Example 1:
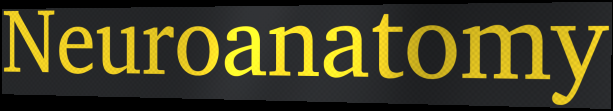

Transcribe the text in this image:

Neuroanatomy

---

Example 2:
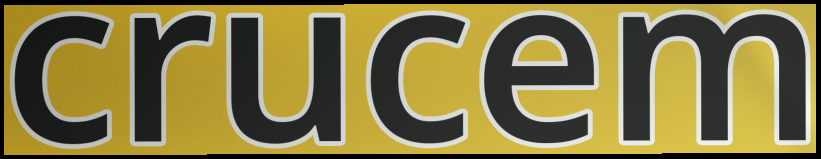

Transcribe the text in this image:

crucem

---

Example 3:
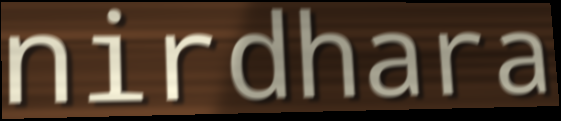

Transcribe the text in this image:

nirdhara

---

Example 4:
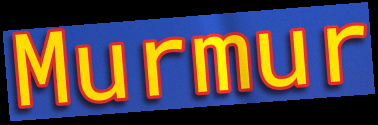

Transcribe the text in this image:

Murmur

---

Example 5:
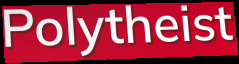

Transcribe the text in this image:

Polytheist